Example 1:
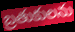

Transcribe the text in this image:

బ్రతుకులను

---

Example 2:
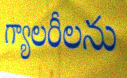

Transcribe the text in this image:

గ్యాలరీలను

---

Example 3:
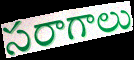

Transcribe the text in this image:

సరాగాలు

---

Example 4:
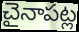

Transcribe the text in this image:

చైనాపట్ల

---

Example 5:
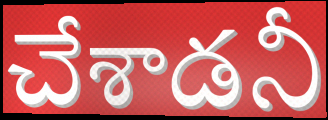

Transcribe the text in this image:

చేశాడనీ